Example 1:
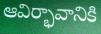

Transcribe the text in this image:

ఆవిర్భావానికి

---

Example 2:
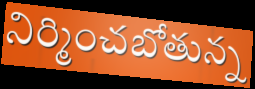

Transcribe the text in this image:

నిర్మించబోతున్న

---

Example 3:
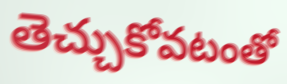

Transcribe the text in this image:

తెచ్చుకోవటంతో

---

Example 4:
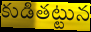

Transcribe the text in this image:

కుడితట్టున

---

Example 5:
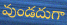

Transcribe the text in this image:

వుండదుగా